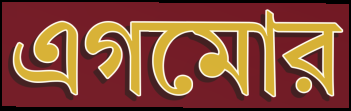
এগমোর